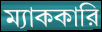
ম্যাককারি